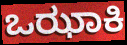
ಒಝಾಕಿ